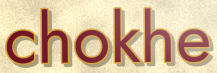
chokhe